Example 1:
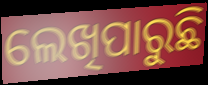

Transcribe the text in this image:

ଲେଖିପାରୁଛି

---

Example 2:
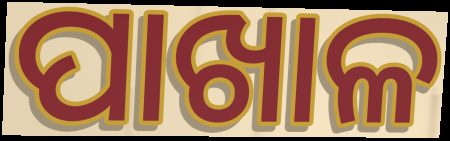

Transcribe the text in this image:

ପାଖାଳ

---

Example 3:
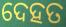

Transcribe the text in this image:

ଦେହତ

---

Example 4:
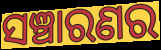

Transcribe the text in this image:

ସଞ୍ଚାରଣର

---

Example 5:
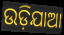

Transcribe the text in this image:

ଉଡ଼ିଯାଆ